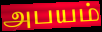
அபயம்